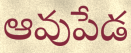
ఆవుపేడ